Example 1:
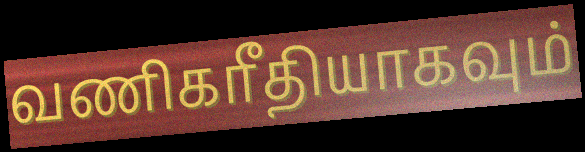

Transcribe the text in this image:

வணிகரீதியாகவும்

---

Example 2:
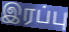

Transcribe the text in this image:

இரப்பு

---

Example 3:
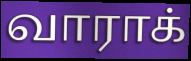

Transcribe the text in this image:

வாராக்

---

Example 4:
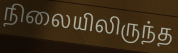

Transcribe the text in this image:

நிலையிலிருந்த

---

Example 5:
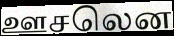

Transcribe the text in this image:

ஊசலென